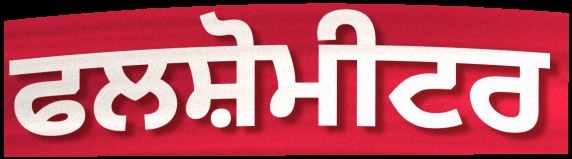
ਫਲਸ਼ੋਮੀਟਰ